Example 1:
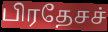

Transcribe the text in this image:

பிரதேசச்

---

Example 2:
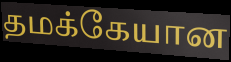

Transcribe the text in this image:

தமக்கேயான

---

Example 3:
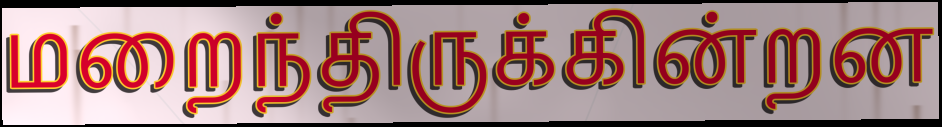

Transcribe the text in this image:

மறைந்திருக்கின்றன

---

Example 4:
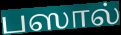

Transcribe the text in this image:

பஸால்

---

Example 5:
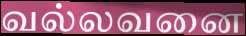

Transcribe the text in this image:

வல்லவனை